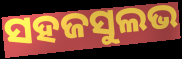
ସହଜସୁଲଭ